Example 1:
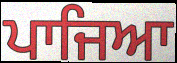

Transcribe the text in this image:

ਪਾਜਿਆ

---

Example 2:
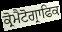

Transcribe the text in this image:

ਕ੍ਰੋਮੈਟੋਗ੍ਰਾਫਿਕ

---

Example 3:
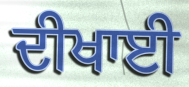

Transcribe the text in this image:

ਦੀਖਾਈ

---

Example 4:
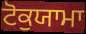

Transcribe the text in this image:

ਟੋਕੁਯਾਮਾ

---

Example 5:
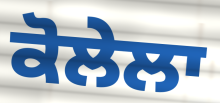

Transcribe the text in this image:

ਕੋਲੇਲਾ